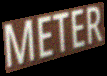
METER